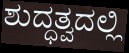
ಶುದ್ಧತ್ವದಲ್ಲಿ